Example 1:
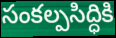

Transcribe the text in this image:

సంకల్పసిద్ధికి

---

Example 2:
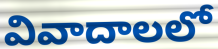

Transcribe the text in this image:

వివాదాలలో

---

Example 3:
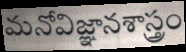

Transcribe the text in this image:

మనోవిజ్ఞానశాస్త్రం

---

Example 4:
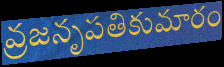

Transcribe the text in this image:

వ్రజనృపతికుమారం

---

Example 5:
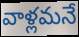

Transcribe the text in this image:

వాళ్లమనే